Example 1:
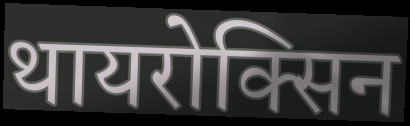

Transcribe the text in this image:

थायरोक्सिन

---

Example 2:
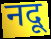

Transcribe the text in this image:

नदू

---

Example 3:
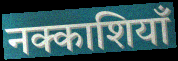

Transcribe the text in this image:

नक्काशियाँ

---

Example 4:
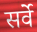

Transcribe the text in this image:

सर्वे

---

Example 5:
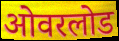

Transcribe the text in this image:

ओवरलोड